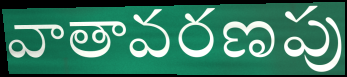
వాతావరణపు